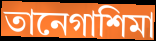
তানেগাশিমা